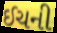
ઈચની